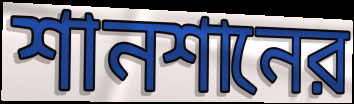
শানশানের